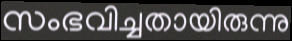
സംഭവിച്ചതായിരുന്നു